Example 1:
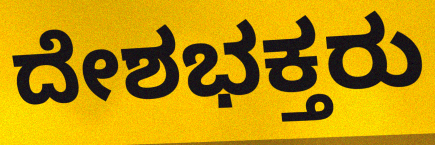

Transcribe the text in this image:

ದೇಶಭಕ್ತರು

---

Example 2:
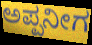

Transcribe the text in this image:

ಅಪ್ಪನೀಗ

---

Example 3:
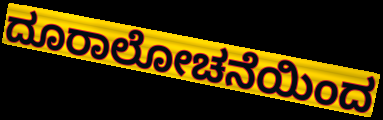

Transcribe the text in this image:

ದೂರಾಲೋಚನೆಯಿಂದ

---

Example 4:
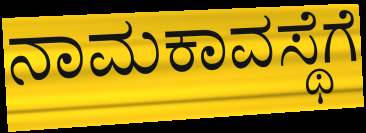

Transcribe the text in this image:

ನಾಮಕಾವಸ್ಥೆಗೆ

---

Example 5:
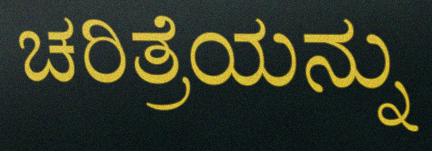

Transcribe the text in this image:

ಚರಿತ್ರೆಯನ್ನು